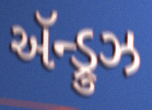
ઍન્ડ્રુઝ